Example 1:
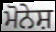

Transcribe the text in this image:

ਮੋਨੇਸ਼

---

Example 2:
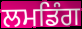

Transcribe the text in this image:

ਲਮਡਿੰਗ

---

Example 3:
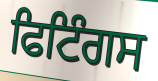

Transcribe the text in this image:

ਫਿਟਿੰਗਸ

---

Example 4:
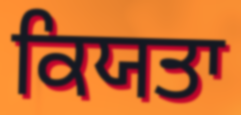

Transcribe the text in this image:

ਕਿਯਤਾ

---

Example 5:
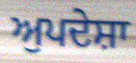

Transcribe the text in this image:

ਅੁਪਦੇਸ਼ਾ